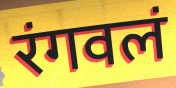
रंगवलं